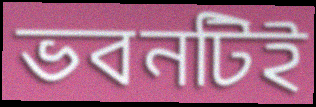
ভবনটিই